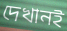
দেখানই